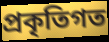
প্রকৃতিগত